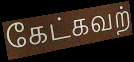
கேட்கவற்